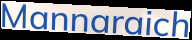
Mannaraich